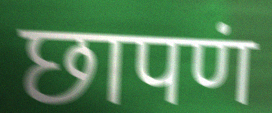
छापणं